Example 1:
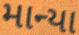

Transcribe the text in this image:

માન્યા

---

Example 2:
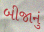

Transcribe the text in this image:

બીજાનું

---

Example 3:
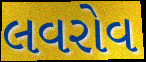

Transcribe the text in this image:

લવરોવ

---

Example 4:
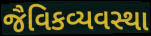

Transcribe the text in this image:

જૈવિકવ્યવસ્થા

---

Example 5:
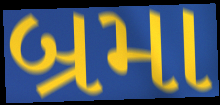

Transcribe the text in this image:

બ્રમા